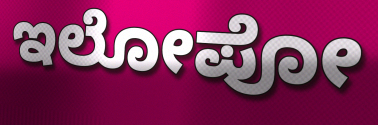
ಇಲೋಪೋ